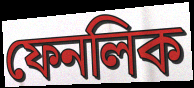
ফেনলিক